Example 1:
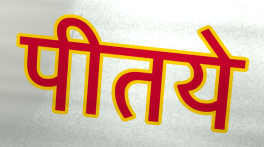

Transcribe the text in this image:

पीतये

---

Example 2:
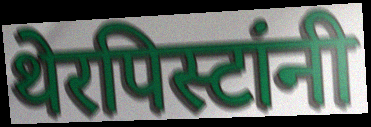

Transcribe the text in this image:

थेरपिस्टांनी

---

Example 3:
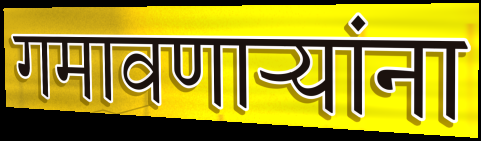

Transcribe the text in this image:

गमावणाऱ्यांना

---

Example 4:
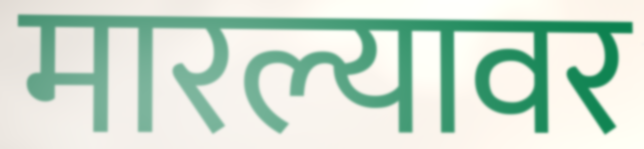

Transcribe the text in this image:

मारल्यावर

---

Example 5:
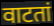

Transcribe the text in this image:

वाटतां